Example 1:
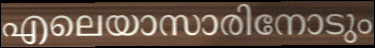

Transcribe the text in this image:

എലെയാസാരിനോടും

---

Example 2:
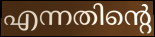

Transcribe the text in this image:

എന്നതിന്റെ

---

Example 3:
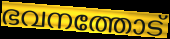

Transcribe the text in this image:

ഭവനത്തോട്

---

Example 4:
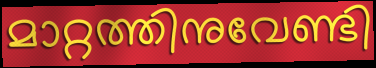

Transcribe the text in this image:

മാറ്റത്തിനുവേണ്ടി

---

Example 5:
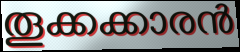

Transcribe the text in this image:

തൂക്കക്കാരൻ